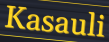
Kasauli